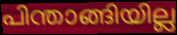
പിന്താങ്ങിയില്ല